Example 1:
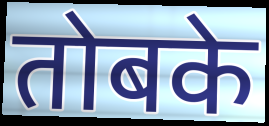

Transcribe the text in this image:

तोबके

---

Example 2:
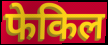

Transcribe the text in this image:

फेकिल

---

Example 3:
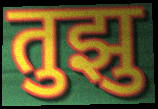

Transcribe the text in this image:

तुझु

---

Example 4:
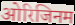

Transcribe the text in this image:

ओरिजिनम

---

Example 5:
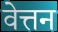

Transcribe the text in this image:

वेत्तन